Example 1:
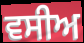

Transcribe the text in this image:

ਵਸੀਅ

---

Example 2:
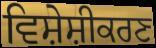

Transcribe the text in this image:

ਵਿਸ਼ੇਸ਼ੀਕਰਣ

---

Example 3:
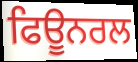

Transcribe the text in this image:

ਫਿਊਨਰਲ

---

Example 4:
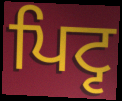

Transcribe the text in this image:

ਪਿਟ੍ਟ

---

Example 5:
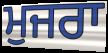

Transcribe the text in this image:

ਮੁਜਰਾ